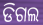
ଡିଗଲ